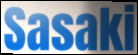
Sasaki